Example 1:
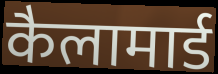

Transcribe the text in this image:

कैलामार्ड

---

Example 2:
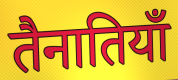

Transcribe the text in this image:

तैनातियाँ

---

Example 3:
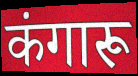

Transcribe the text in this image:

कंगारू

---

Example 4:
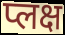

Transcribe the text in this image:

प्लक्ष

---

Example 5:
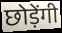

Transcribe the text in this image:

छोड़ेंगी